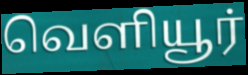
வெளியூர்